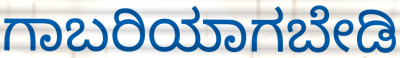
ಗಾಬರಿಯಾಗಬೇಡಿ